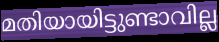
മതിയായിട്ടുണ്ടാവില്ല